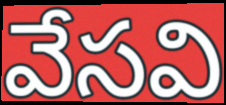
వేసవి